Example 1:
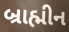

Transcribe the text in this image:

બ્રાહ્મીન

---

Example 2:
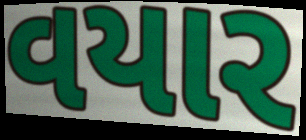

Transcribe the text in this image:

વયાર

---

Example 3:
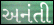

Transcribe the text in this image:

અનંતી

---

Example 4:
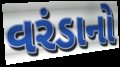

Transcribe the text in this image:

વરંડાનો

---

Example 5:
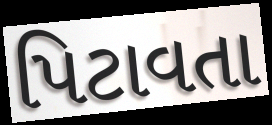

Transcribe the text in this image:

પિટાવતા